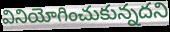
వినియోగించుకున్నదని